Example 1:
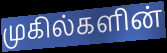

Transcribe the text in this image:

முகில்களின்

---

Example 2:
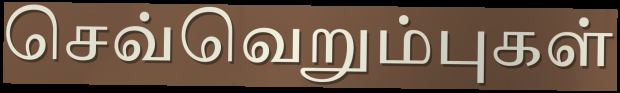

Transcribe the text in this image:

செவ்வெறும்புகள்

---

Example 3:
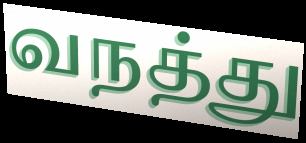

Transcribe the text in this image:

வநத்து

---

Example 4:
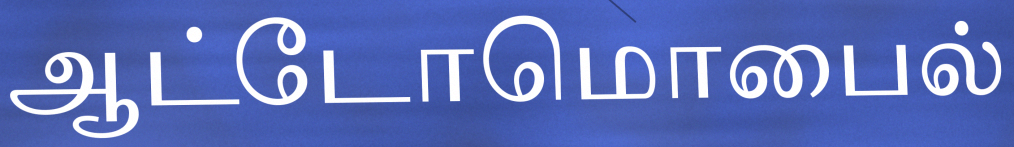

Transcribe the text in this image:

ஆட்டோமொபைல்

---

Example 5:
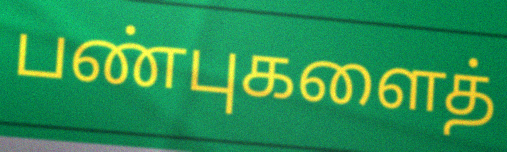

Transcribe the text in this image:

பண்புகளைத்